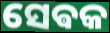
ସେଵକ